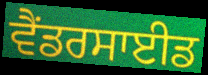
ਵੈਂਡਰਸਾਈਡ